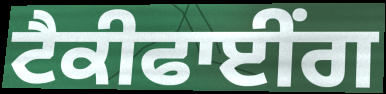
ਟੈਕੀਫਾਈਂਗ